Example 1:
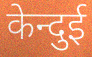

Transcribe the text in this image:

केन्दुई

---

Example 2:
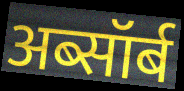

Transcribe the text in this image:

अब्सॉर्ब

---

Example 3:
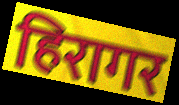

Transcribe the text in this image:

हिरागर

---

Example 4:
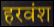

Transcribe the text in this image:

हरवंश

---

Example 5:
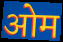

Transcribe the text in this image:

ओम